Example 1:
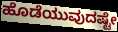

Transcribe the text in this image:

ಹೊಡೆಯುವುದಷ್ಟೇ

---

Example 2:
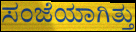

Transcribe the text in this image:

ಸಂಜೆಯಾಗಿತ್ತು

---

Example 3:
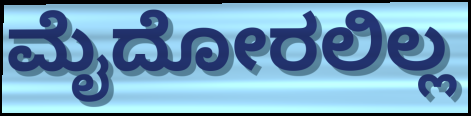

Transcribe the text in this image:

ಮೈದೋರಲಿಲ್ಲ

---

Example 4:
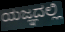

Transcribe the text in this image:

ಯಜ್ಞದಲ್ಲಿ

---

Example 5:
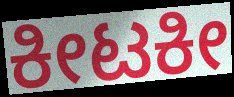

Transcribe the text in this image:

ಕೀಟಕೀ